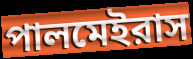
পালমেইরাস